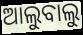
ଆଲୁବାଲୁ